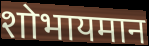
शोभायमान